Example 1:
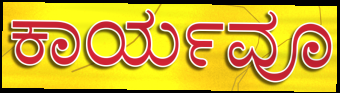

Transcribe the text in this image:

ಕಾರ್ಯವೂ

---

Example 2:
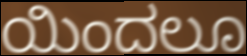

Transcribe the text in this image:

ಯಿಂದಲೂ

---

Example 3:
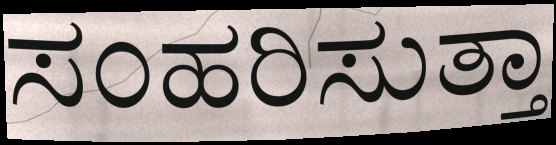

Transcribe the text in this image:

ಸಂಹರಿಸುತ್ತಾ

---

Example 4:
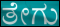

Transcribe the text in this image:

ತೇಗು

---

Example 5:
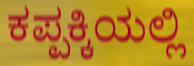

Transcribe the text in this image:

ಕಪ್ಪಕ್ಕಿಯಲ್ಲಿ